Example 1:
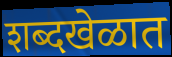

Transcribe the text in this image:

शब्दखेळात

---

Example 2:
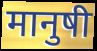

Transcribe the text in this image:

मानुषी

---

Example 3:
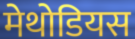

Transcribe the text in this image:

मेथोडियस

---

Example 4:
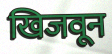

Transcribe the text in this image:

खिजवून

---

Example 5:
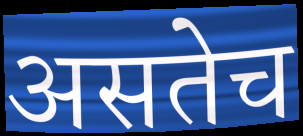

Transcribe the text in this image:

असतेच